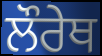
ਲੌਰੇਥ